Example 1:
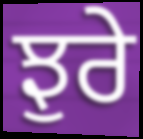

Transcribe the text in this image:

ਝੁਰੇ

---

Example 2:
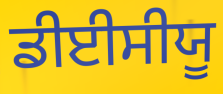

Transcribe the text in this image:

ਡੀਈਸੀਯੂ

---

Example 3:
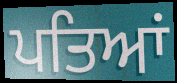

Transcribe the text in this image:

ਪਤਿਆਂ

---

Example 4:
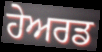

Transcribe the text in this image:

ਹੇਅਰਡ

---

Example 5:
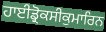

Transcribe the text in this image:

ਹਾਈਡ੍ਰੋਕਸੀਕੁਮਾਰਿਨ